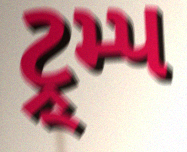
ટ્ર્મ્પ